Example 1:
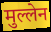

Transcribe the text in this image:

मुल्लेन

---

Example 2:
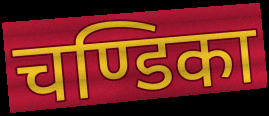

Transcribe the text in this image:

चण्डिका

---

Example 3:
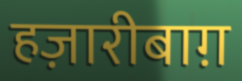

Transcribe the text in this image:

हज़ारीबाग़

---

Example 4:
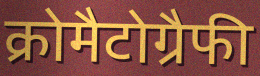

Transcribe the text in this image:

क्रोमैटोग्रैफी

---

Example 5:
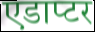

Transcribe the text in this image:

एडाप्टर